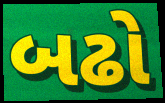
બઢો